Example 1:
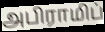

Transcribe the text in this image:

அபிராமிப்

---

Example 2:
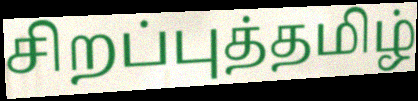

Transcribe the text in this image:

சிறப்புத்தமிழ்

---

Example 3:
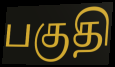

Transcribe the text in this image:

பகுதி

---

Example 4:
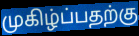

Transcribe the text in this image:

முகிழ்ப்பதற்கு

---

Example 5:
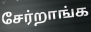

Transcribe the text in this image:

சேர்றாங்க